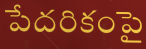
పేదరికంపై